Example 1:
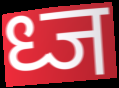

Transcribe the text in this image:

ध्ज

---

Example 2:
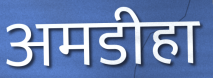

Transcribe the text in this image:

अमडीहा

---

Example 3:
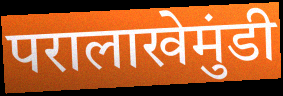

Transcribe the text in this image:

परालाखेमुंडी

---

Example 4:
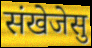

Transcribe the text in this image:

संखेजेसु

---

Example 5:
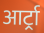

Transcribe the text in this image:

आर्ट्रा